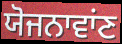
ਯੋਜਨਾਵਾਂਣ